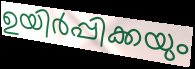
ഉയിർപ്പിക്കയും